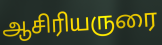
ஆசிரியருரை